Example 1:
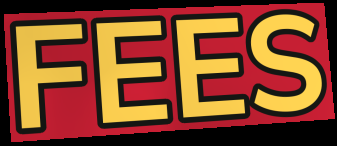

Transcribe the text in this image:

FEES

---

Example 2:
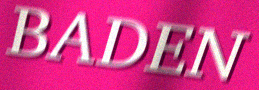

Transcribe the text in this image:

BADEN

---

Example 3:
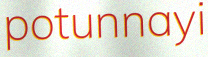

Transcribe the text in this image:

potunnayi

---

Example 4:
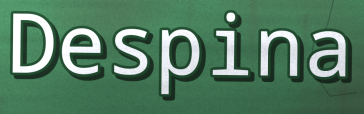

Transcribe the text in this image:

Despina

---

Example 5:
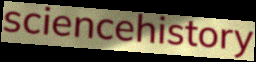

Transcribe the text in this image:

sciencehistory